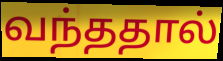
வந்ததால்